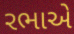
રભાએ